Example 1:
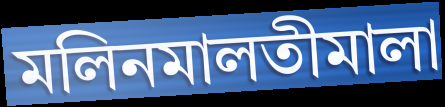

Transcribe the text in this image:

মলিনমালতীমালা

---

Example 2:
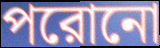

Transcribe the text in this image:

পরোনো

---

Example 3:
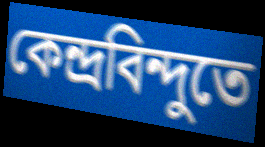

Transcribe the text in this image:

কেন্দ্রবিন্দুতে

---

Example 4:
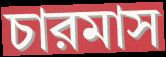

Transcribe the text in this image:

চারমাস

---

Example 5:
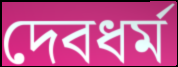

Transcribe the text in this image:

দেবধর্ম